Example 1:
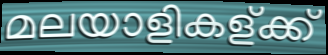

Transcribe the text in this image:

മലയാളികള്ക്ക്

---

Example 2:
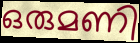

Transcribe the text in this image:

ഒരുമണി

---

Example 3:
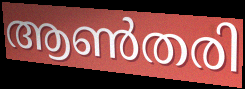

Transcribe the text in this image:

ആൺതരി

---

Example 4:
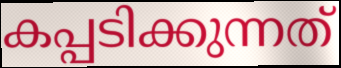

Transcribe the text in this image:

കപ്പടിക്കുന്നത്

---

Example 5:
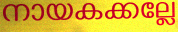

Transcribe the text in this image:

നായകക്കല്ലേ